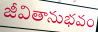
జీవితానుభవం